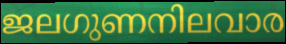
ജലഗുണനിലവാര